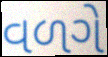
વળગે